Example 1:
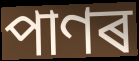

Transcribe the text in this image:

পাণৰ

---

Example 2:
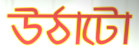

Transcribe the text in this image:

উঠাটো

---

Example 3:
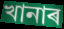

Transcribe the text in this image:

খানাৰ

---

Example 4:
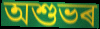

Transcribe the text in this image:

অশুভৰ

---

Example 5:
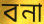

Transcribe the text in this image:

বনা